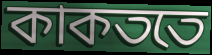
কাকততে